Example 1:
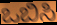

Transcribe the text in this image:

ಒಬಿಸಿ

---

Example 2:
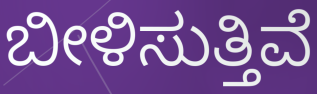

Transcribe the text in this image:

ಬೀಳಿಸುತ್ತಿವೆ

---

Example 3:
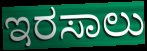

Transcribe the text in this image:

ಇರಸಾಲು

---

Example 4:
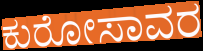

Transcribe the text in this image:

ಕುರೋಸಾವರ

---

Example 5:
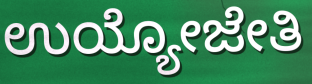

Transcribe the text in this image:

ಉಯ್ಯೋಜೇತಿ